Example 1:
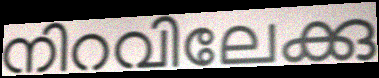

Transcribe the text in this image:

നിറവിലേക്കു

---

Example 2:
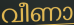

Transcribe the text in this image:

വീണാ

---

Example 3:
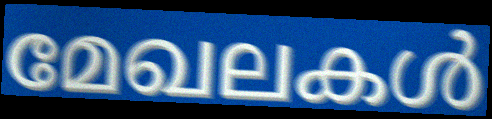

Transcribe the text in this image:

മേഖലകൾ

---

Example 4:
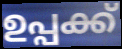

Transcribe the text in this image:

ഉപ്പക്ക്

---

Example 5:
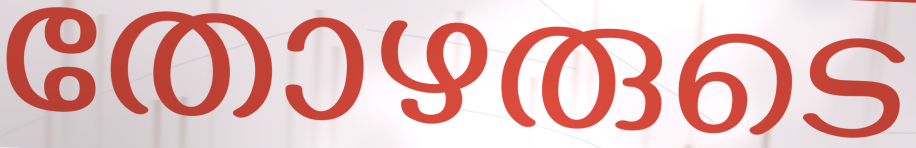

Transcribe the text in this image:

തോഴരുടെ